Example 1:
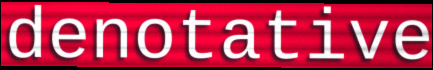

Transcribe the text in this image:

denotative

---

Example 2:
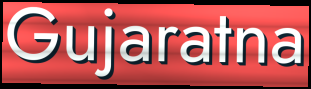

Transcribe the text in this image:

Gujaratna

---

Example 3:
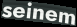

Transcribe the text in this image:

seinem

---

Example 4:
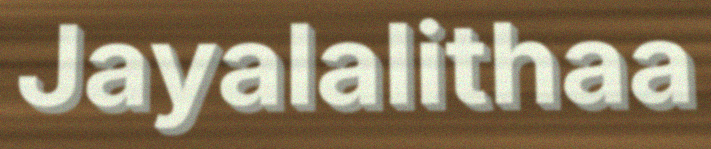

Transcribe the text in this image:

Jayalalithaa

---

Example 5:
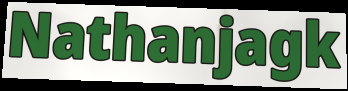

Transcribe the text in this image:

Nathanjagk